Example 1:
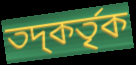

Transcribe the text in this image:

তদ্‌কর্তৃক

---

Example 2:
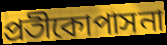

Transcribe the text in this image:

প্রতীকোপাসনা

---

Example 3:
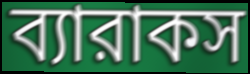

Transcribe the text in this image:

ব্যারাকস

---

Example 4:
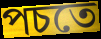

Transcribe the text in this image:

পচতে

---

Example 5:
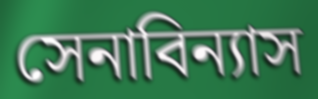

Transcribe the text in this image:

সেনাবিন্যাস